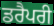
ਡਰੈਪਰੀ